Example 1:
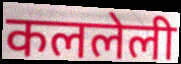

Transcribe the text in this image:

कललेली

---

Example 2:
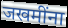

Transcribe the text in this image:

जखमींना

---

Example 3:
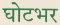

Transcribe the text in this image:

घोटभर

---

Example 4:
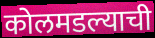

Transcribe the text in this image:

कोलमडल्याची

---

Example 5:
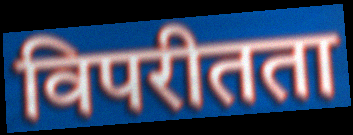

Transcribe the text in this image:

विपरीतता